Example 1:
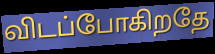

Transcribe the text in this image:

விடப்போகிறதே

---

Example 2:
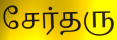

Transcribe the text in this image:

சேர்தரு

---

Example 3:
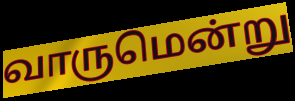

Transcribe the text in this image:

வாருமென்று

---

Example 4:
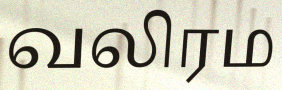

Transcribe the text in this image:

வலிரம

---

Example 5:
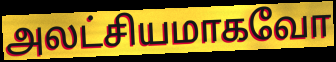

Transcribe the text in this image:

அலட்சியமாகவோ